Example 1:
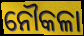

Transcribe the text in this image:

ନୌକଳା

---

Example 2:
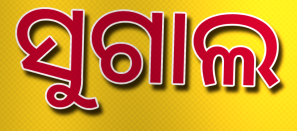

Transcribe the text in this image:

ସୁଗାଲ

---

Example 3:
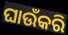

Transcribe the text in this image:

ଘାଉଁକରି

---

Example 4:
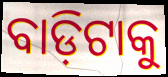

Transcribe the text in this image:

ବାଡ଼ିଟାକୁ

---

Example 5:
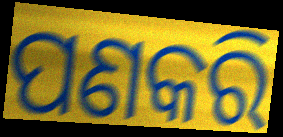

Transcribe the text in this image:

ପଣକରି